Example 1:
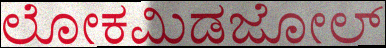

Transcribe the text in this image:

ಲೋಕಮಿಡಜೋಲ್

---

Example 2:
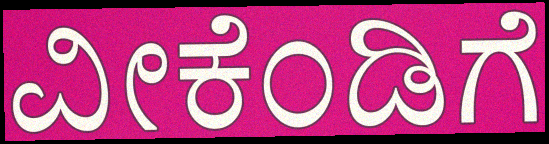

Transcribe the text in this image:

ವೀಕೆಂಡಿಗೆ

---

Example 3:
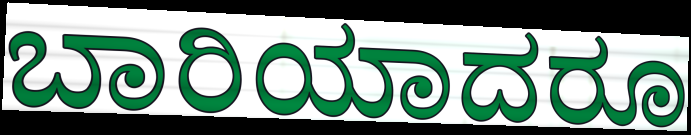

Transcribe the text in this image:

ಬಾರಿಯಾದರೂ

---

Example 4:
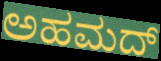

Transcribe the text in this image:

ಅಹಮದ್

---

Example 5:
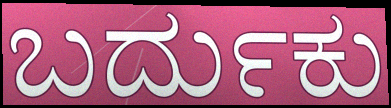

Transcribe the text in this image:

ಬರ್ದುಕು